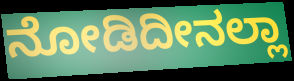
ನೋಡಿದೀನಲ್ಲಾ